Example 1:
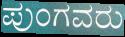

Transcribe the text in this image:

ಪುಂಗವರು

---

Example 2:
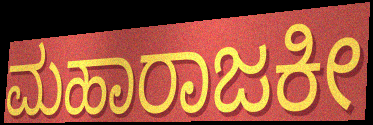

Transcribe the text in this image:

ಮಹಾರಾಜಕೀ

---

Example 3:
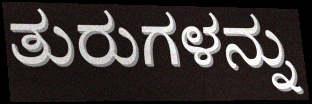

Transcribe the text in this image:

ತುರುಗಳನ್ನು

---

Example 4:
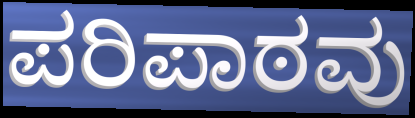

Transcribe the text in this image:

ಪರಿಪಾಠವು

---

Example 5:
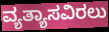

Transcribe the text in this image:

ವ್ಯತ್ಯಾಸವಿರಲು